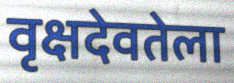
वृक्षदेवतेला